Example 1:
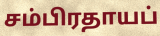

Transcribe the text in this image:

சம்பிரதாயப்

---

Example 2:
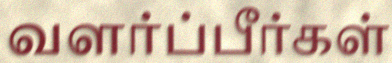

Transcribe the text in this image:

வளர்ப்பீர்கள்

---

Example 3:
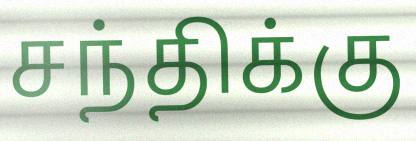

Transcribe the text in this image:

சந்திக்கு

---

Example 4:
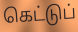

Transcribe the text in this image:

கெட்டுப்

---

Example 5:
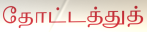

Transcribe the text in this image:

தோட்டத்துத்